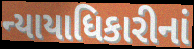
ન્યાયાધિકારીનાં